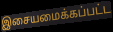
இசையமைக்கப்பட்ட